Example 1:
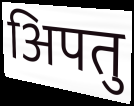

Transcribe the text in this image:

अिपतु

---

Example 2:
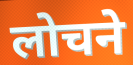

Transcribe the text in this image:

लोचने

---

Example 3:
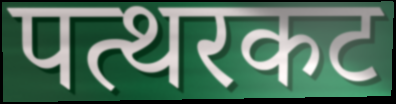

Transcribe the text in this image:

पत्थरकट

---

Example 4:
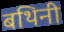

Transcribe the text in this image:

बथिनी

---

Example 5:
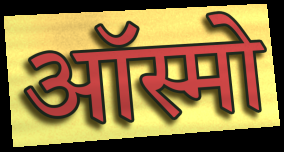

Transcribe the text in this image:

ऑस्मो